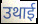
उथाई